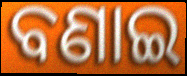
ବଣାଇ